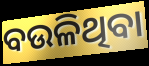
ବଉଳିଥିବା